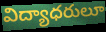
విద్యాధరులూ